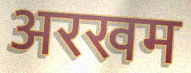
अरखम